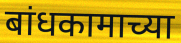
बांधकामाच्या